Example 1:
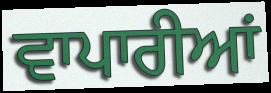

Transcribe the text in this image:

ਵਾਪਾਰੀਆਂ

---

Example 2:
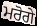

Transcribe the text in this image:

ਮਰੋਗੇ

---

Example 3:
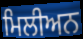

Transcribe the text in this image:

ਮਿਲੀਅਨ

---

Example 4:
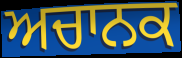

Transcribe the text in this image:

ਅਚਾਨਕ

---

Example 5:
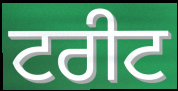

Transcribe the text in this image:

ਟਰੀਟ